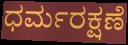
ಧರ್ಮರಕ್ಷಣೆ